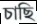
চাছি